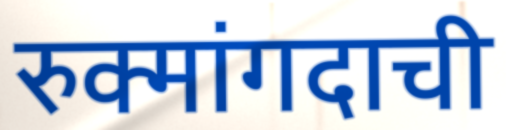
रुक्मांगदाची